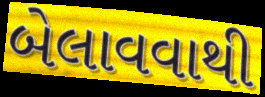
બેલાવવાથી